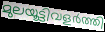
മുലയൂട്ടിവളർത്തി